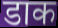
डाक